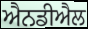
ਐਨਡੀਐਲ